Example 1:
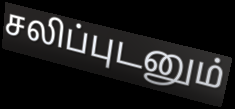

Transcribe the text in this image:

சலிப்புடனும்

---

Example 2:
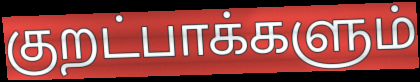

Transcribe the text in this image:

குறட்பாக்களும்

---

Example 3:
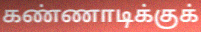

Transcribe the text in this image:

கண்ணாடிக்குக்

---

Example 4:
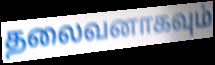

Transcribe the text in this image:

தலைவனாகவும்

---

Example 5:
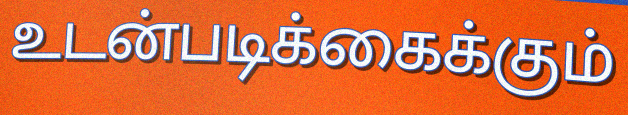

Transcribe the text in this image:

உடன்படிக்கைக்கும்